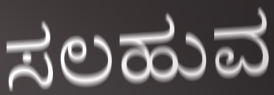
ಸಲಹುವ